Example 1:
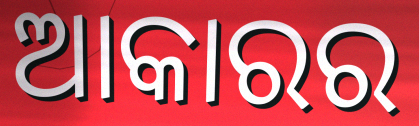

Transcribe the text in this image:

ଆକାରର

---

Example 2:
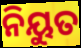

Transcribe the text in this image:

ନିୟୁତ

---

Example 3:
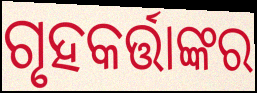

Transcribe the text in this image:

ଗୃହକର୍ତ୍ତାଙ୍କର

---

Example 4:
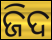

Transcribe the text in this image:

ଜିଦ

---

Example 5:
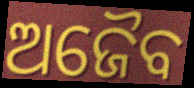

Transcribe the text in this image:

ଅଜୈବ